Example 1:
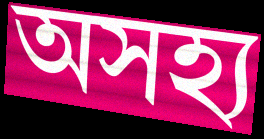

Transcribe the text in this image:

অসহ্য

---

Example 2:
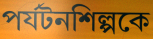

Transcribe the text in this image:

পর্যটনশিল্পকে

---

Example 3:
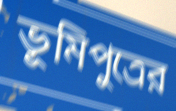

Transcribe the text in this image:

ভূমিপুত্রের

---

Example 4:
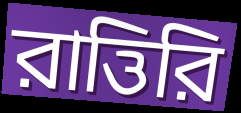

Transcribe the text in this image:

রাত্তিরি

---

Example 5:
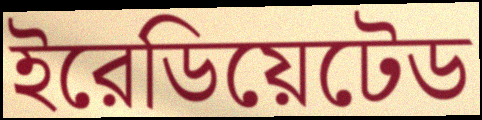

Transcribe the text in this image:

ইরেডিয়েটেড